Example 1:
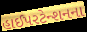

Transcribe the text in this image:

હાઈપરટેન્શનના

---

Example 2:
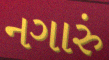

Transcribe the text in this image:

નગારું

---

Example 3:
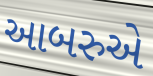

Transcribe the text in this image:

આબરુએ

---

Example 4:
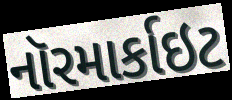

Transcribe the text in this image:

નૉરમાર્કાઇટ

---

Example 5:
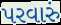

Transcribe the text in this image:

પરવારું